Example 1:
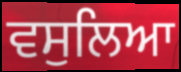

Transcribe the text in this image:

ਵਸੁਲਿਆ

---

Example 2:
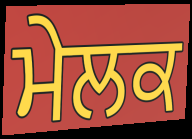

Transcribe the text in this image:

ਮੇਲਕ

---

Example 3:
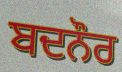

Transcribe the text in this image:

ਬਦਨੌਰ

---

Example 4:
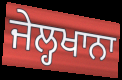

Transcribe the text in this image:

ਜੇਲ੍ਹਖਾਨਾ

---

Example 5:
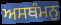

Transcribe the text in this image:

ਅਸਥੰਮਨੁ